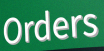
Orders